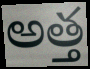
అత్త